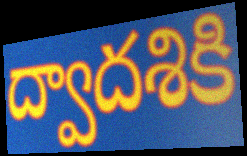
ద్వాదశికి